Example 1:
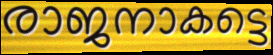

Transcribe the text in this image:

രാജനാകട്ടെ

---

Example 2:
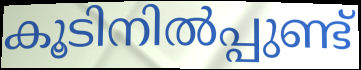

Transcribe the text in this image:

കൂടിനിൽപ്പുണ്ട്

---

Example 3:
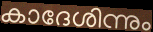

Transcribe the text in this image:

കാദേശിന്നും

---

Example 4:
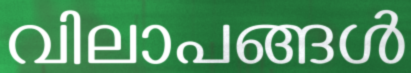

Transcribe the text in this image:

വിലാപങ്ങൾ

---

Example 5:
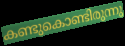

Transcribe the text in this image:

കണ്ടുകൊണ്ടിരുന്നു